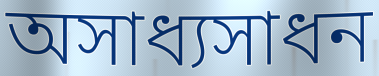
অসাধ্যসাধন